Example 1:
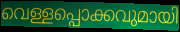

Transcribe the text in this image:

വെള്ളപ്പൊക്കവുമായി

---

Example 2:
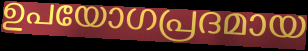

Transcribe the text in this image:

ഉപയോഗപ്രദമായ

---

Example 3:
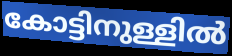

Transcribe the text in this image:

കോട്ടിനുള്ളിൽ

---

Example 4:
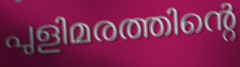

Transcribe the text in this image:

പുളിമരത്തിന്റെ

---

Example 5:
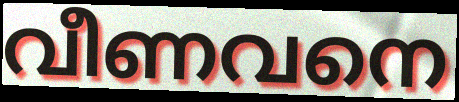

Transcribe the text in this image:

വീണവനെ